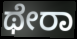
ಥೇರಾ